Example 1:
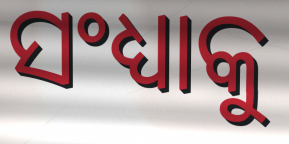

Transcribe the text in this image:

ସଂଧ୍ୟାକୁ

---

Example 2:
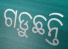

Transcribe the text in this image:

ଗଡ଼ୁଛନ୍ତି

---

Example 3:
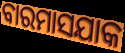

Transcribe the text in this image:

ବାରମାସଯାକ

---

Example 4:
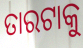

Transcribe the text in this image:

ତାରଟାକୁ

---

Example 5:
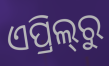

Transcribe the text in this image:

ଏପ୍ରିଲ୍‍ରୁ